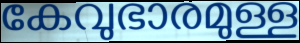
കേവുഭാരമുള്ള